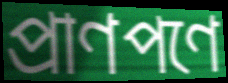
প্রাণপণে